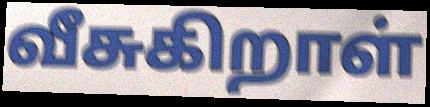
வீசுகிறாள்